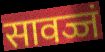
सावज्जं